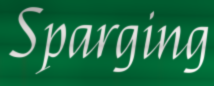
Sparging